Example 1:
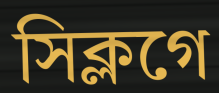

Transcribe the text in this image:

সিক্লগে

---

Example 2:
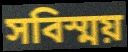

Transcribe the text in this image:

সবিস্ময়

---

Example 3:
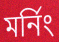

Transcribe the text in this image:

মর্নিং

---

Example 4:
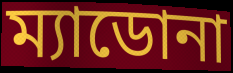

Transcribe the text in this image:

ম্যাডোনা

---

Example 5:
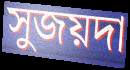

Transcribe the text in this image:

সুজয়দা